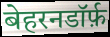
बेहरनडॉर्फ़